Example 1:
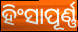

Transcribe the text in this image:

ହିଂସାପୂର୍ଣ୍ଣ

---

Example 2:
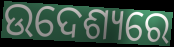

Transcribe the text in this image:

ଉଦେଶ୍ୟରେ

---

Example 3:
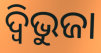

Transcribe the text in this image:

ଦ୍ବିଭୁଜା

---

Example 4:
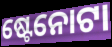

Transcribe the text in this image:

ଷ୍ଟେନୋଟା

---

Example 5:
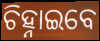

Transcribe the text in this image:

ଚିହ୍ନାଇବେ